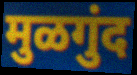
मुळगुंद